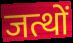
जत्थों